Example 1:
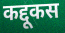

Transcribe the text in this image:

कद्दूकस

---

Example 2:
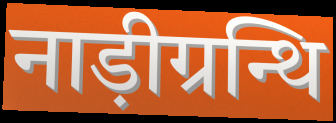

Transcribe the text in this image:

नाड़ीग्रन्थि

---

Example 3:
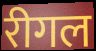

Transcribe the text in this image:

रीगल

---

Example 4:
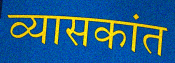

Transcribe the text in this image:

व्यासकांत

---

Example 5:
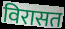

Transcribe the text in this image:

विरासत